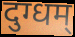
दुग्धम्